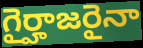
గైర్హాజరైనా